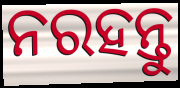
ନରହନ୍ତୁ